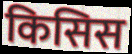
किसिस